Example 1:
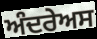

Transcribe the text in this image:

ਅੰਦਰੇਅਸ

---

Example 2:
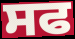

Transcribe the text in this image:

ਸਫ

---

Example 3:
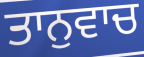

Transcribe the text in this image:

ਤਾਨੁਵਾਚ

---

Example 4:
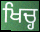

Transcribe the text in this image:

ਖਿਚ੍ਹ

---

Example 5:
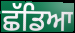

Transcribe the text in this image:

ਛੱਡਿਆ